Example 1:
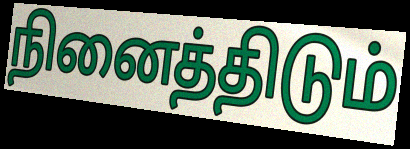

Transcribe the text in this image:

நினைத்திடும்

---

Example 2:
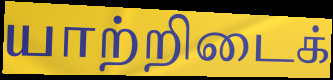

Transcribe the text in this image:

யாற்றிடைக்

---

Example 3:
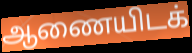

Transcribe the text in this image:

ஆணையிடக்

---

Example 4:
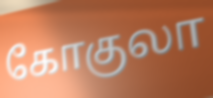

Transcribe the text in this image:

கோகுலா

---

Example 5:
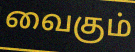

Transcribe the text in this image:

வைகும்